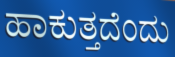
ಹಾಕುತ್ತದೆಂದು